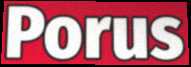
Porus